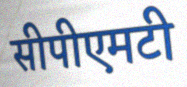
सीपीएमटी